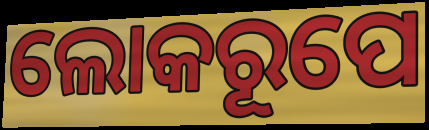
ଲୋକରୂପେ